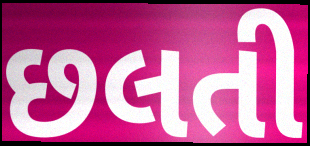
છલતી